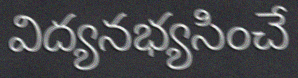
విద్యనభ్యసించే